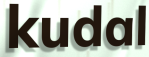
kudal